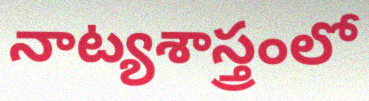
నాట్యశాస్త్రంలో